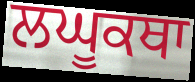
ਲਘੂਕਥਾ